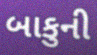
બાકુની